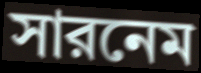
সারনেম